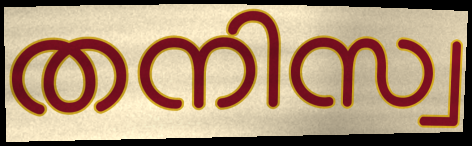
തനിസ്വ